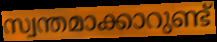
സ്വന്തമാക്കാറുണ്ട്